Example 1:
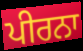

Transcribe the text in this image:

ਪੀਰਨਾ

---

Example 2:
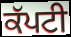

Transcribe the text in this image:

ਕੱਪਟੀ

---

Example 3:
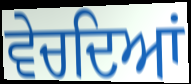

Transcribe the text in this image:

ਵੇਚਦਿਆਂ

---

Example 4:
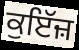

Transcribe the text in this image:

ਕੁਇੱਜ਼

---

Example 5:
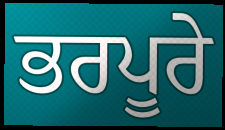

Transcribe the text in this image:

ਭਰਪੂਰੇ